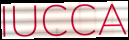
IUCCA